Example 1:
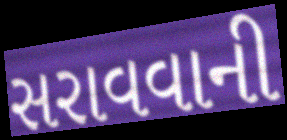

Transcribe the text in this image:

સરાવવાની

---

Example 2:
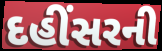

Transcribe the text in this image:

દહીંસરની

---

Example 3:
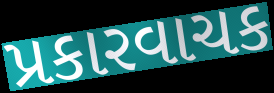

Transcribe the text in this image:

પ્રકારવાચક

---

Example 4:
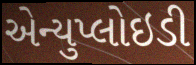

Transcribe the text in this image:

એન્યુપ્લોઇડી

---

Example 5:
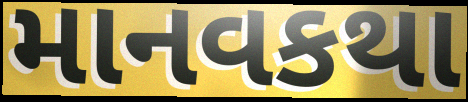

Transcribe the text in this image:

માનવકથા